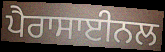
ਪੈਰਾਸਾਈਨਲ